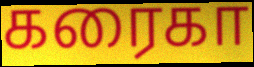
கரைகா